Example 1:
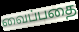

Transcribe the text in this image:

வைப்பதை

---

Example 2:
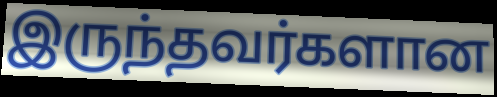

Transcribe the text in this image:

இருந்தவர்களான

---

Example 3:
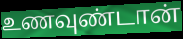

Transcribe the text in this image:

உணவுண்டான்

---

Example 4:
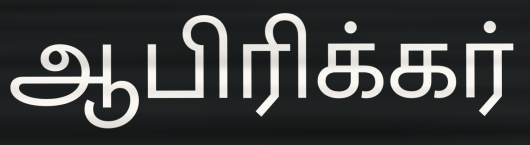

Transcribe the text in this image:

ஆபிரிக்கர்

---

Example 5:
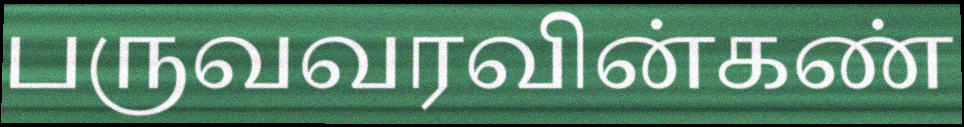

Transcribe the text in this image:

பருவவரவின்கண்